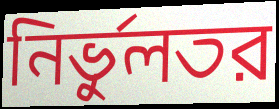
নির্ভুলতর